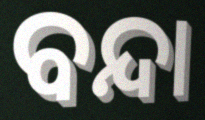
ବନ୍ଦା